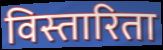
विस्तारिता